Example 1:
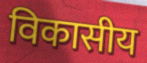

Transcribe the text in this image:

विकासीय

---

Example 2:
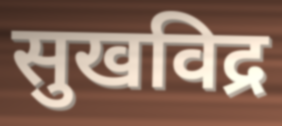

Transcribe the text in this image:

सुखविद्र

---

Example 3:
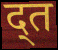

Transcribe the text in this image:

द्त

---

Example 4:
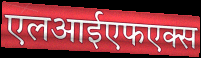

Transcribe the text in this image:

एलआईएफएक्स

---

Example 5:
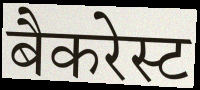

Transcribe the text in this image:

बैकरेस्ट